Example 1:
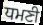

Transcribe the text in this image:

ਧਮਣੀ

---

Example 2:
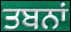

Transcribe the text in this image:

ਤਬਨਾਂ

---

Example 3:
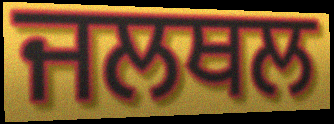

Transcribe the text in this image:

ਜਲਥਲ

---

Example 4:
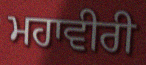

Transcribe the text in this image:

ਮਹਾਵੀਰੀ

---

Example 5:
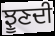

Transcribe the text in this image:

ਝੂਣਦੀ